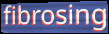
fibrosing